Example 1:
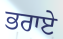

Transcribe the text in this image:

ਭਰਾਏ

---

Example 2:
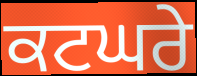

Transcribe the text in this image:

ਕਟਘਰੇ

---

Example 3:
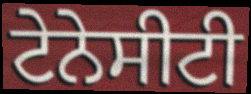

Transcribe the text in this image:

ਟੇਨੇਸੀਟੀ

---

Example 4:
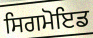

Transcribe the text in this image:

ਸਿਗਮੋਇਡ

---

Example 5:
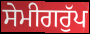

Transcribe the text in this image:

ਸੇਮੀਗਰੁੱਪ